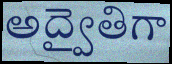
అద్వైతిగా